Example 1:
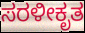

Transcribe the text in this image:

ಸರಳೀಕೃತ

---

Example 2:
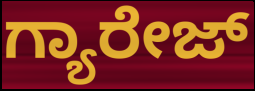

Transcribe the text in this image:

ಗ್ಯಾರೇಜ್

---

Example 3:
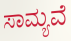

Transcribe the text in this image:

ಸಾಮ್ಯವೆ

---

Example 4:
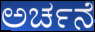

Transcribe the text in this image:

ಅರ್ಚನೆ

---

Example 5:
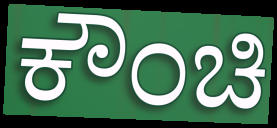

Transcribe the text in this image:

ಕೌಂಚಿ